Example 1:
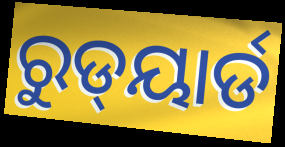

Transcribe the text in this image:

ରୁଡ୍‌ୟାର୍ଡ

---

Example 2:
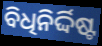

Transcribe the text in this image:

ବିଧିନିର୍ଦ୍ଦିଷ୍ଟ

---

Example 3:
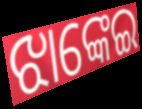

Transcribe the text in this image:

ଝାଙ୍କେଇ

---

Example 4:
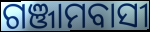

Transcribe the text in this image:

ଗଞ୍ଜାମବାସୀ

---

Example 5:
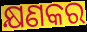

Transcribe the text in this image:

କ୍ଷଣକର